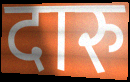
दारु